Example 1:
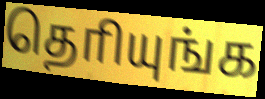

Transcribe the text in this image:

தெரியுங்க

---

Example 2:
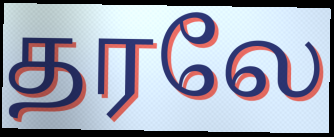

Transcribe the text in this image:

தரலே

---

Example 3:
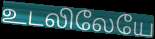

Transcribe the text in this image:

உடலிலேயே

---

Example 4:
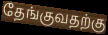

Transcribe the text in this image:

தேங்குவதற்கு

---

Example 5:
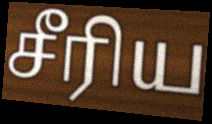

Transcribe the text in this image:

சீரிய